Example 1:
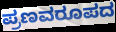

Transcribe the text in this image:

ಪ್ರಣವರೂಪದ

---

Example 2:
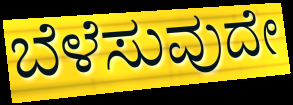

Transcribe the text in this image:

ಬೆಳೆಸುವುದೇ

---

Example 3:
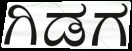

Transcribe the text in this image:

ಗಿಡಗ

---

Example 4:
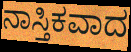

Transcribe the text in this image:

ನಾಸ್ತಿಕವಾದ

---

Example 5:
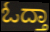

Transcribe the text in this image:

ಓದ್ತಾ